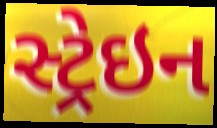
સ્ટ્રેઇન